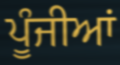
ਪੂੰਜੀਆਂ